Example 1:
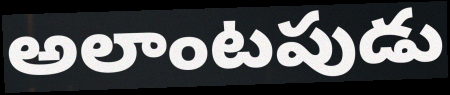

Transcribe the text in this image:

అలాంటపుడు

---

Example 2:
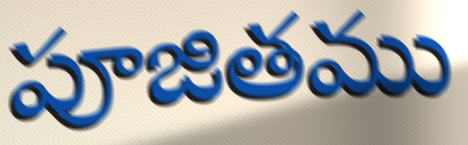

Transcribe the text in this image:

పూజితము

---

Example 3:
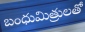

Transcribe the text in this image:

బంధుమిత్రులతో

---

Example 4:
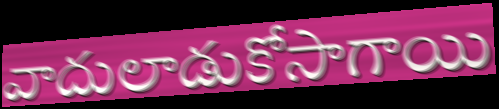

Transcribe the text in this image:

వాదులాడుకోసాగాయి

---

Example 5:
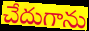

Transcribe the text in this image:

చేదుగాను